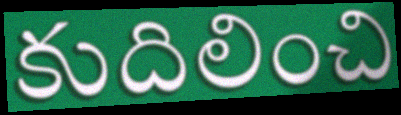
కుదిలించి